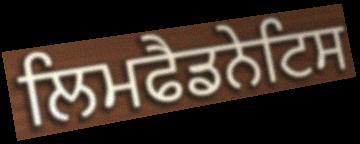
ਲਿਮਫੈਡਨੇਟਿਸ